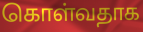
கொள்வதாக